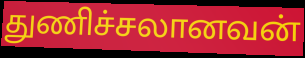
துணிச்சலானவன்